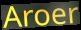
Aroer